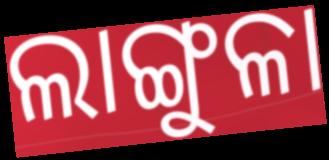
ଲାଙ୍ଗୁଳା